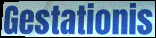
Gestationis